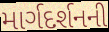
માર્ગદર્શનની